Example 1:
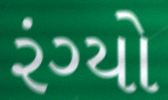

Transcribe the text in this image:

રંગ્યો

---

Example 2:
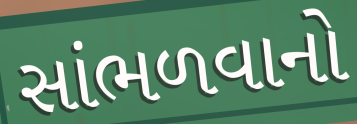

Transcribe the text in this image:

સાંભળવાનો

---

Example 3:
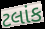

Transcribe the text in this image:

ટલાંક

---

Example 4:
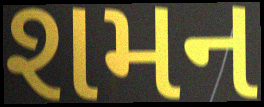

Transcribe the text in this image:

શમન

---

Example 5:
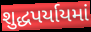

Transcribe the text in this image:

શુદ્ધપર્યાયમાં